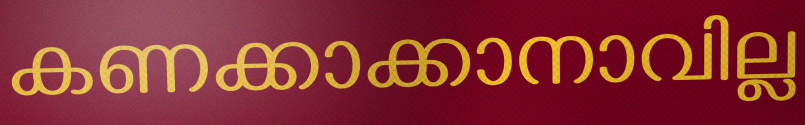
കണക്കാക്കാനാവില്ല